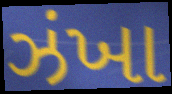
ઝંખા